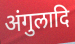
अंगुलादि